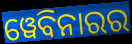
ୱେବିନାରର